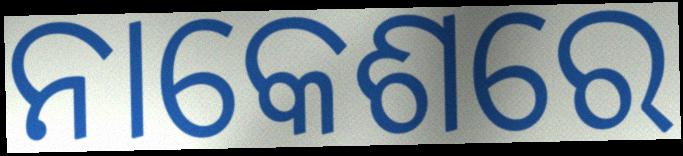
ନାକେଶରେ